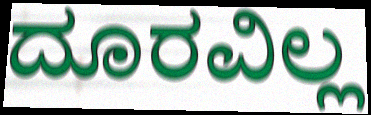
ದೂರವಿಲ್ಲ